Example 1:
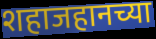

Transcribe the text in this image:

शहाजहानच्या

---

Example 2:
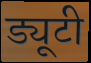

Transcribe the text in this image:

ड्यूटी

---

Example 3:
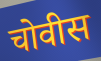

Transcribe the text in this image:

चोवीस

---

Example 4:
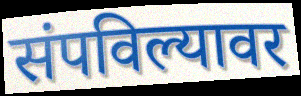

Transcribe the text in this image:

संपविल्यावर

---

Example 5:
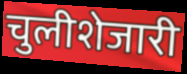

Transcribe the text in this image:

चुलीशेजारी